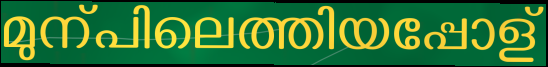
മുന്പിലെത്തിയപ്പോള്